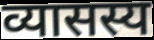
व्यासस्य